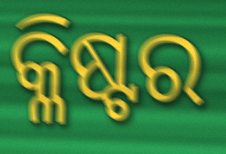
କ୍ଳିଷ୍ଟର